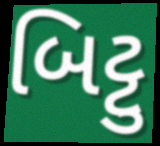
બિટ્ટુ